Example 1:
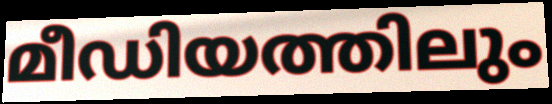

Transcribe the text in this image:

മീഡിയത്തിലും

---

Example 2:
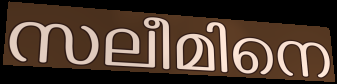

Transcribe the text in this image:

സലീമിനെ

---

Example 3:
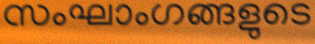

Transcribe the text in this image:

സംഘാംഗങ്ങളുടെ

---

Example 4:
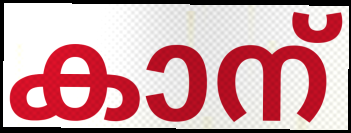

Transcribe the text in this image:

കാന്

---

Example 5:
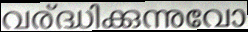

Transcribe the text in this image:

വര്ദ്ധിക്കുന്നുവോ